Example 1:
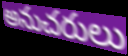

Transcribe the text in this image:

అనుచరులు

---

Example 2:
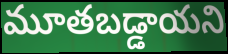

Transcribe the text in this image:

మూతబడ్డాయని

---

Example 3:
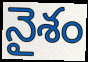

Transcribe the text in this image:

నైశం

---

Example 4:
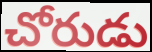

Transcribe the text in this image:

చోరుడు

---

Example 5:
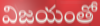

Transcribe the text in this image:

విజయంతో